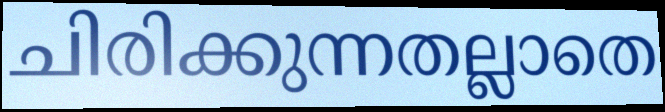
ചിരിക്കുന്നതല്ലാതെ